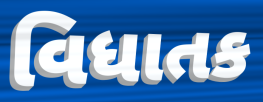
વિધાતક